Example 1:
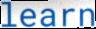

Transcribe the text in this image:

learn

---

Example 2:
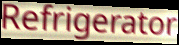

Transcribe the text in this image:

Refrigerator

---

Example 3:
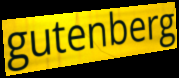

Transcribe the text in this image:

gutenberg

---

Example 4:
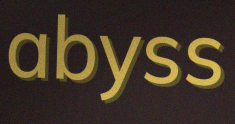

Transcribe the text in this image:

abyss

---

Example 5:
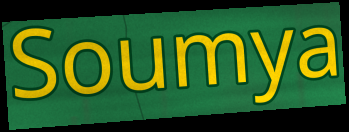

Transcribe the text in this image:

Soumya